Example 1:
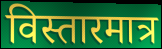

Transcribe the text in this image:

विस्तारमात्र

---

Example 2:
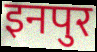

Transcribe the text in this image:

इनपुर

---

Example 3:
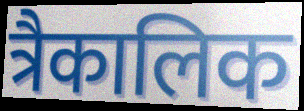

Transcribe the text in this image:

त्रैकालिक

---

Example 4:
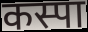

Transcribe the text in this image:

कस्पा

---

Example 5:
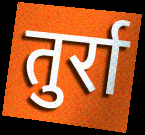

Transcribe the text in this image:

तुर्रा